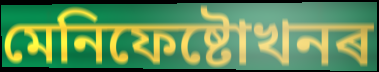
মেনিফেষ্টোখনৰ